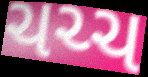
ચચ્ચ